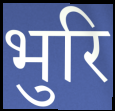
भुरि